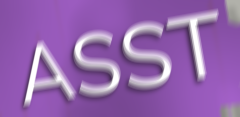
ASST